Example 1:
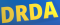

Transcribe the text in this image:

DRDA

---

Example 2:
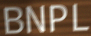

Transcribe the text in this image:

BNPL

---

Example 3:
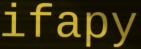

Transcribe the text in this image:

ifapy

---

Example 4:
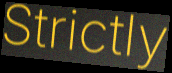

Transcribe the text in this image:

Strictly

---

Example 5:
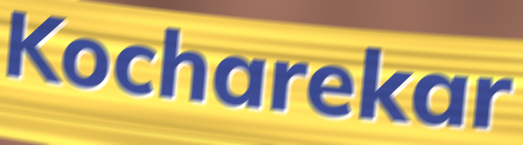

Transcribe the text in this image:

Kocharekar